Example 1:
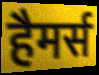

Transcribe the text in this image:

हैमर्स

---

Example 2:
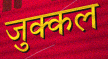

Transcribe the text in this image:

जुक्कल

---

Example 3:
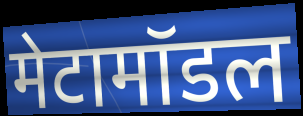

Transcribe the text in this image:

मेटामॉडल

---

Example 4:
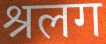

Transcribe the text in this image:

श्रलग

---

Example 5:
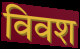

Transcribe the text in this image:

विवश